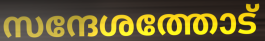
സന്ദേശത്തോട്